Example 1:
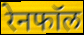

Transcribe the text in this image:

रेनफॉल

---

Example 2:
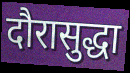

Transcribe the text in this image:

दौरासुद्धा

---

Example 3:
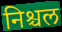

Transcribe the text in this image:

निश्चल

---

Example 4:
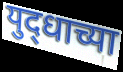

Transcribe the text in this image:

युद्धाच्या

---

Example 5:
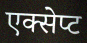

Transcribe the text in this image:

एक्सेप्ट